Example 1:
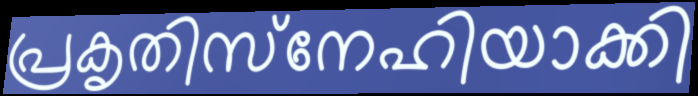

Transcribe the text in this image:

പ്രകൃതിസ്‌നേഹിയാക്കി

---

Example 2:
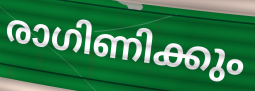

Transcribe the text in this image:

രാഗിണിക്കും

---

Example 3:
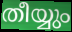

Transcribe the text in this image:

തീയ്യും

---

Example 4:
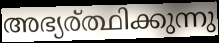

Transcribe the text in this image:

അഭ്യര്ത്ഥിക്കുന്നു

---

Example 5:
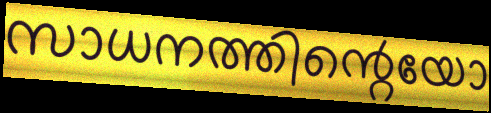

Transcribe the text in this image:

സാധനത്തിന്റെയോ